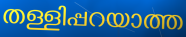
തള്ളിപ്പറയാത്ത